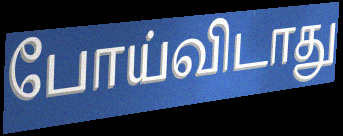
போய்விடாது